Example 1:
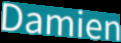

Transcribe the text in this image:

Damien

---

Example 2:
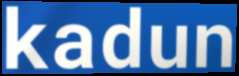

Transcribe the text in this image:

kadun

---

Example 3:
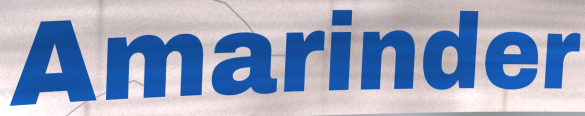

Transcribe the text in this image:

Amarinder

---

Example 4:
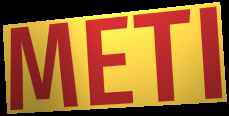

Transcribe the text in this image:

METI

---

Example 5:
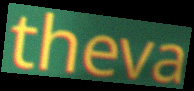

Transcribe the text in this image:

theva